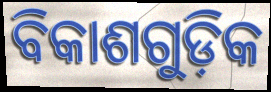
ବିକାଶଗୁଡ଼ିକ